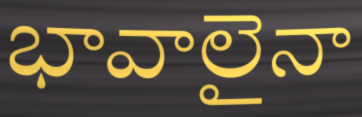
భావాలైనా